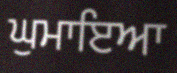
ਘੁਮਾਇਆ